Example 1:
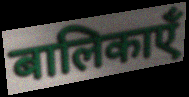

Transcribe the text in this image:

बालिकाएँ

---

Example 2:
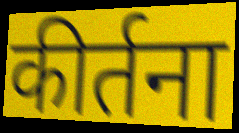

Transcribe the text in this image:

कीर्तना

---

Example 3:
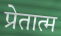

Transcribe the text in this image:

प्रेतात्म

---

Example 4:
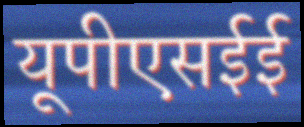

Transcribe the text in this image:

यूपीएसईई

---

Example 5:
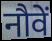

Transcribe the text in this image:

नौवें